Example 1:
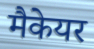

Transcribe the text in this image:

मैकेयर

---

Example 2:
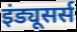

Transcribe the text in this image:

इंड्यूसर्स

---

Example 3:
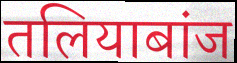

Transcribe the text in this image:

तलियाबांज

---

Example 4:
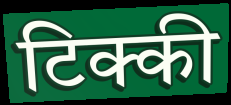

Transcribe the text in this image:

टिक्‍की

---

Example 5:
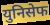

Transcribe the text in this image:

युनिसेफ